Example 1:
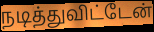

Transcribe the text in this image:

நடித்துவிட்டேன்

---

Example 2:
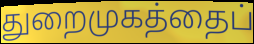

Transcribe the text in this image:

துறைமுகத்தைப்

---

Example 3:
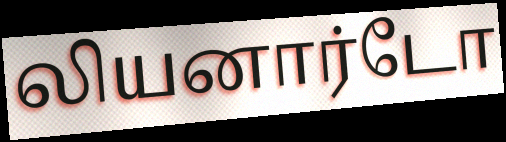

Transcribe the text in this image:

லியனார்டோ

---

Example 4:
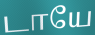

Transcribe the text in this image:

டாயே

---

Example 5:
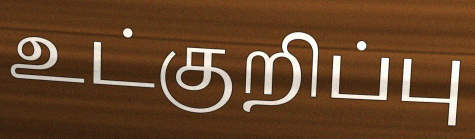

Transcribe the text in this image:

உட்குறிப்பு